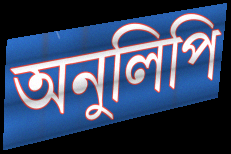
অনুলিপি